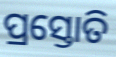
ପ୍ରସ୍ତୋତି